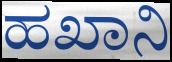
ಹಖಾನಿ